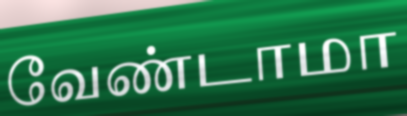
வேண்டாமா